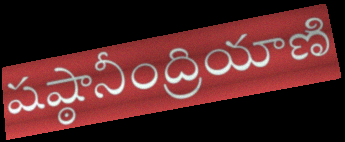
షష్ఠానీంద్రియాణి